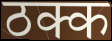
ठक्क